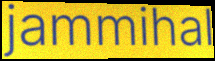
jammihal